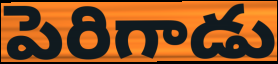
పెరిగాడు